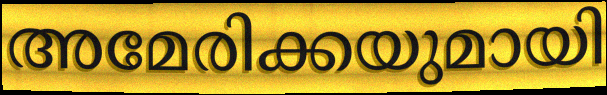
അമേരിക്കയുമായി